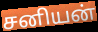
சனியன்